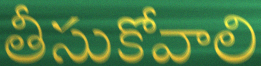
తీసుకోవాలి